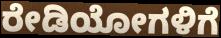
ರೇಡಿಯೋಗಳಿಗೆ